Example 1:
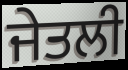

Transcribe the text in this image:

ਜੇਤਲੀ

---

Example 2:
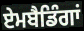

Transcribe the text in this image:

ਏਮਬੈਡਿੰਗਾਂ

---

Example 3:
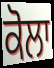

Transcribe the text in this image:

ਕੋਲਾ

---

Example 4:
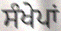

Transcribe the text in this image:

ਸੰਖੇਪਾਂ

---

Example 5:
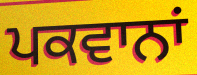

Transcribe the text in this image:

ਪਕਵਾਨਾਂ